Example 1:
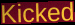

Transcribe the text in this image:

Kicked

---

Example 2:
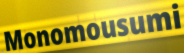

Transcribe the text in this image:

Monomousumi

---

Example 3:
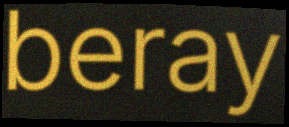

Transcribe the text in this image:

beray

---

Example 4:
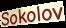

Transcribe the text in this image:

Sokolov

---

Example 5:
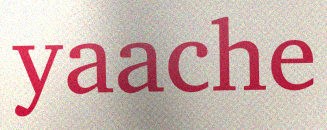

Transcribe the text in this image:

yaache